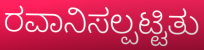
ರವಾನಿಸಲ್ಪಟ್ಟಿತು